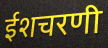
ईशचरणी